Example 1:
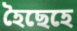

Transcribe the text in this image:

হৈছেহে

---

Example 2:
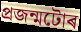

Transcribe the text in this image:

প্ৰজন্মটোৰ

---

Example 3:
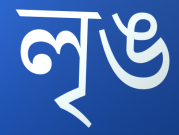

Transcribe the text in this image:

লৃঙ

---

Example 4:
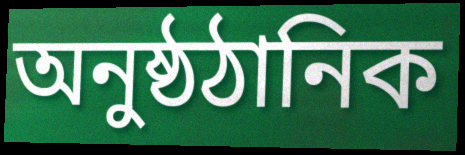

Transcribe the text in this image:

অনুষ্ঠঠানিক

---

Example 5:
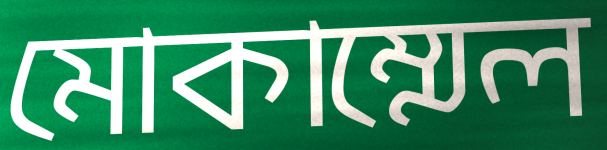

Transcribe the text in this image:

মোকাম্মেল